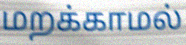
மறக்காமல்